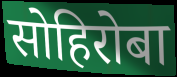
सोहिरोबा